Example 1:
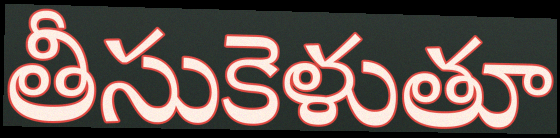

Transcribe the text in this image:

తీసుకెళుతూ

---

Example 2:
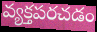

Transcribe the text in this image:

వ్యక్తపరచడం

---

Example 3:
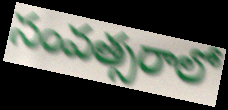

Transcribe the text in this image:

సంవత్సరాలో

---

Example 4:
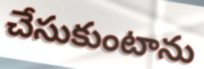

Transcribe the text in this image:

చేసుకుంటాను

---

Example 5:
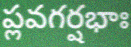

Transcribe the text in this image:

ప్లవగర్షభాః